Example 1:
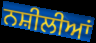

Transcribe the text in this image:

ਨਸ਼ੀਲੀਆਂ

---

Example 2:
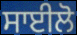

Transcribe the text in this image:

ਸਾਈਲੋ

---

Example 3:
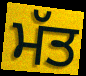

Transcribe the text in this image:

ਮੱਤ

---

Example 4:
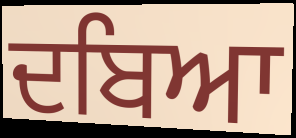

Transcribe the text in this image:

ਦਬਿਆ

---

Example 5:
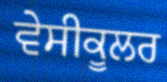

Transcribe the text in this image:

ਵੇਸੀਕੂਲਰ